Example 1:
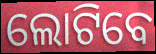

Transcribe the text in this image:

ଲୋଟିବେ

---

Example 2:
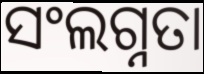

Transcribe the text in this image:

ସଂଲଗ୍ନତା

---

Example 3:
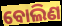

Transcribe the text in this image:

ବୋଲିଣ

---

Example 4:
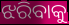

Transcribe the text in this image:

ଝରିବାକୁ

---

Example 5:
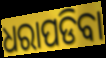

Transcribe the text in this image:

ଧରାପଡିବା